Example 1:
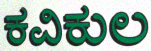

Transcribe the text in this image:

ಕವಿಕುಲ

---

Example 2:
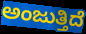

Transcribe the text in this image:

ಅಂಜುತ್ತಿದೆ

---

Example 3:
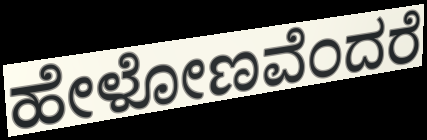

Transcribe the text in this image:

ಹೇಳೋಣವೆಂದರೆ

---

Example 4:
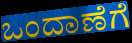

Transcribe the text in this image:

ಒಂದಾಣೆಗೆ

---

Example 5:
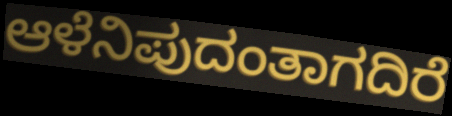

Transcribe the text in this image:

ಆಳೆನಿಪುದಂತಾಗದಿರೆ